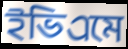
ইভিএমে